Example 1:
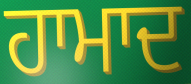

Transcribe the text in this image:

ਹਾਮਾਦ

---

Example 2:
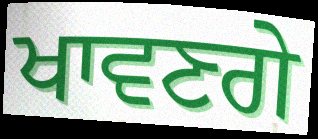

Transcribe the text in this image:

ਖਾਵਣਗੇ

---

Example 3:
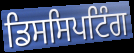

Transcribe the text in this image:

ਡਿਸਸਿਪਟਿੰਗ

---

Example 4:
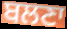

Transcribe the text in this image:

ਬਲਣਾ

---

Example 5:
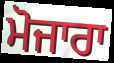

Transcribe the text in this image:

ਮੋਜਾਰਾ